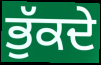
ਭੁੱਕਦੇ